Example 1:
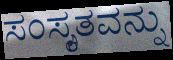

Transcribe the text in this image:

ಸಂಸ್ಕೃತವನ್ನು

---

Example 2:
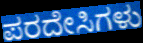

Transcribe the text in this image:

ಪರದೇಸಿಗಳು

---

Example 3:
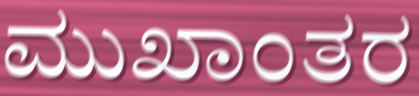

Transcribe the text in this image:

ಮುಖಾಂತರ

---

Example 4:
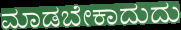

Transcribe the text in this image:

ಮಾಡಬೇಕಾದುದು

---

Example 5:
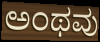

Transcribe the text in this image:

ಅಂಥವು